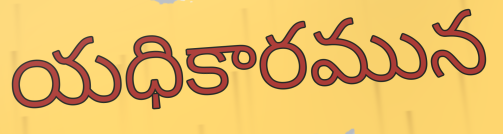
యధికారమున